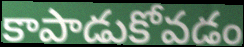
కాపాడుకోవడం